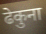
ढेकुना